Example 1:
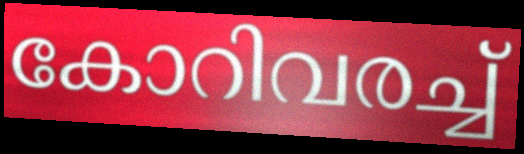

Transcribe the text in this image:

കോറിവരച്ച്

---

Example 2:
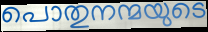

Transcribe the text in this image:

പൊതുനന്മയുടെ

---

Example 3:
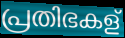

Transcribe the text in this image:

പ്രതിഭകള്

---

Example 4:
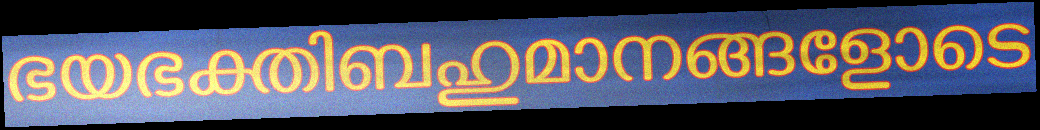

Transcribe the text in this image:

ഭയഭക്തിബഹുമാനങ്ങളോടെ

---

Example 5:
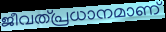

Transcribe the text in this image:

ജീവത്പ്രധാനമാണ്